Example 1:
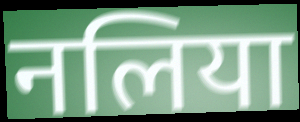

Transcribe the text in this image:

नलिया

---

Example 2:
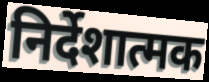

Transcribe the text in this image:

निर्देशात्मक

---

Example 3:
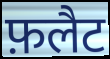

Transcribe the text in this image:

फ़लैट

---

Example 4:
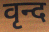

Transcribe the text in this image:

वृन्द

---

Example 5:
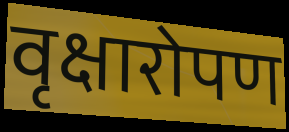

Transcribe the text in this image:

वृक्षारोपण